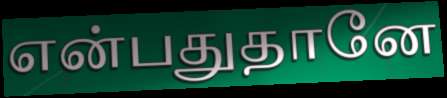
என்பதுதானே